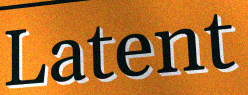
Latent